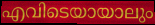
എവിടെയായാലും